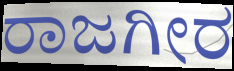
ರಾಜಗೀರ